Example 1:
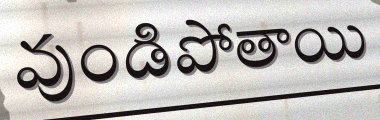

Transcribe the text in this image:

వుండిపోతాయి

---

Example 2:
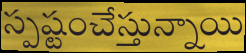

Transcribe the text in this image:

స్పష్టంచేస్తున్నాయి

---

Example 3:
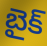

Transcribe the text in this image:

బైక్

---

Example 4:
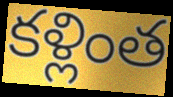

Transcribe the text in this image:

కళ్లింత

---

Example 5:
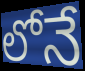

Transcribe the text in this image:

లోనే